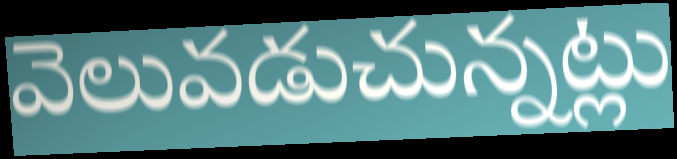
వెలువడుచున్నట్లు